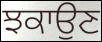
ਝਕਾਉਣ